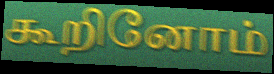
கூறினோம்